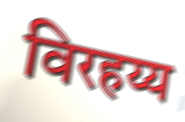
विरहय्य